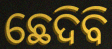
ଛେଦିବି